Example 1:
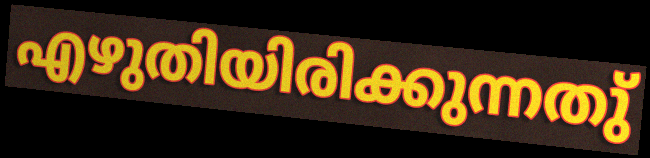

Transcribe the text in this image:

എഴുതിയിരിക്കുന്നതു്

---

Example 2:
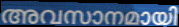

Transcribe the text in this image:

അവസാനമായി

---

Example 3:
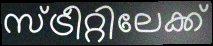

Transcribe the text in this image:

സ്ട്രീറ്റിലേക്ക്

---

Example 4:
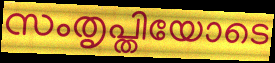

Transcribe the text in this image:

സംതൃപ്തിയോടെ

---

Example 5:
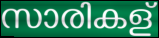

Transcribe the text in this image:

സാരികള്